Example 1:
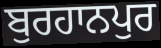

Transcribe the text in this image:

ਬੁਰਹਾਨਪੁਰ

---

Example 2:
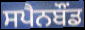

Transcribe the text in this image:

ਸਪੈਨਬੌਂਡ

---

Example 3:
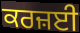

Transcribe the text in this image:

ਕਰਜ਼ਈ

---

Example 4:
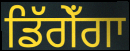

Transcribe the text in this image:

ਡਿੱਗੇਁਗਾ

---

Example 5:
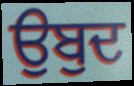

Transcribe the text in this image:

ਉਬੁਦ